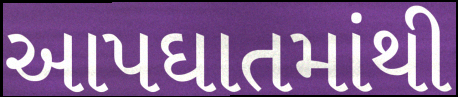
આપઘાતમાંથી